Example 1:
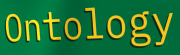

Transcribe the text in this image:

Ontology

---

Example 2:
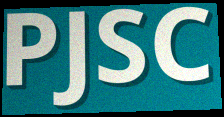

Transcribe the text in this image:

PJSC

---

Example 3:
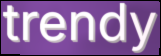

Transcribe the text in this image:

trendy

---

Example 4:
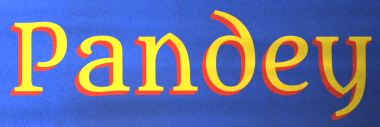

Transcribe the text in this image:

Pandey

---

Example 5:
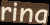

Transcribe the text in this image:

rina